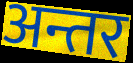
अन्‍तर